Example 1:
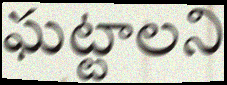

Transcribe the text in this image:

ఘట్టాలని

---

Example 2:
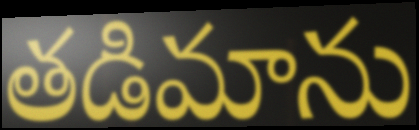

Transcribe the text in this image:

తడిమాను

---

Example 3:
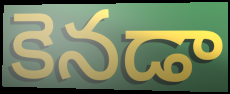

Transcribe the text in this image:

కెనడా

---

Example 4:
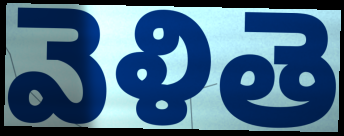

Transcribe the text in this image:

వెళితె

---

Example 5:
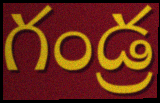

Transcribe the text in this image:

గండ్ర